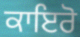
ਕਾਇਰੋ